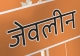
जेवलीन